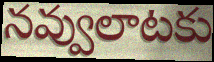
నవ్వులాటకు